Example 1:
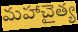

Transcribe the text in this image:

మహాచైత్య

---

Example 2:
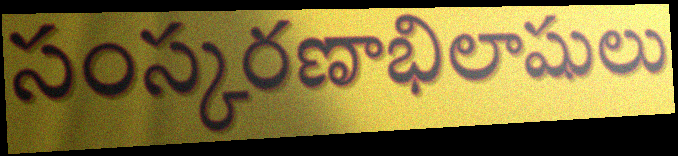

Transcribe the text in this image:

సంస్కరణాభిలాషులు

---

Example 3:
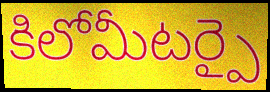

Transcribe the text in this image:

కిలోమీటర్పై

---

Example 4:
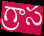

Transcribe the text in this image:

గ్రాస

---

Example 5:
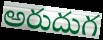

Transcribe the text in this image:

అరుదుగ